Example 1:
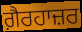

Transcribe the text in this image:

ਗ਼ੈਰਹਾਜ਼ਰ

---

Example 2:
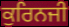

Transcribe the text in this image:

ਕੁਰਿਨਜੀ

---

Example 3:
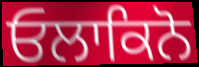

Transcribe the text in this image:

ਓਲਾਕਿਨੋ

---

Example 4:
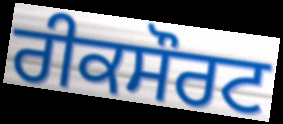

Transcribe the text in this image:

ਰੀਕਸੌਰਟ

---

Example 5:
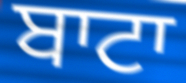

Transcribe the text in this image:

ਬਾਟਾ